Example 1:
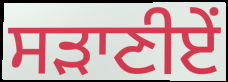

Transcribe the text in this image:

ਸੜਾਣੀਏਂ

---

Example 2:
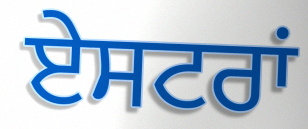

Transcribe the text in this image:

ਏਸਟਰਾਂ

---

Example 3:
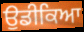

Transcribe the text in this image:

ਉਡੀਕਿਆ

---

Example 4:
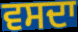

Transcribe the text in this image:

ਵਸਦਾ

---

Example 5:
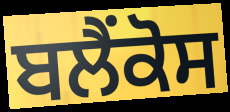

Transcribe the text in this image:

ਬਲੈਂਕੋਸ